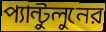
প্যান্টুলুনের